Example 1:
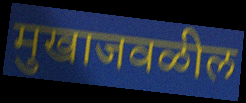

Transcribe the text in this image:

मुखाजवळील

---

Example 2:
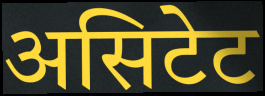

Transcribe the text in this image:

असिटेट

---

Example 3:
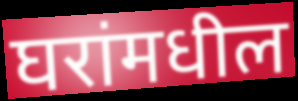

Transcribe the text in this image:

घरांमधील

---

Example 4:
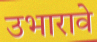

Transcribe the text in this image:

उभारावे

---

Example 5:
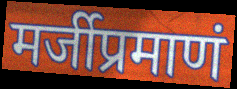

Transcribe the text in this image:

मर्जीप्रमाणं